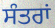
ਸੰਤਰਾਂ